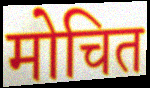
मोचित